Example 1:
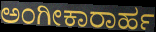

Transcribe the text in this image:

ಅಂಗೀಕಾರಾರ್ಹ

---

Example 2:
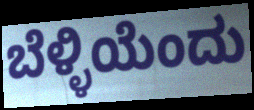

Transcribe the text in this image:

ಬೆಳ್ಳಿಯೆಂದು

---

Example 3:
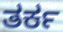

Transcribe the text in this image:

ತರ್ಕ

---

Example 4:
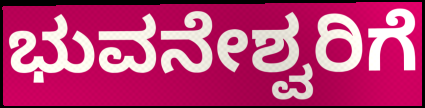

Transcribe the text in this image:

ಭುವನೇಶ್ವರಿಗೆ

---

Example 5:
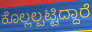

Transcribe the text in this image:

ಕೊಲ್ಲಲ್ಪಟ್ಟಿದ್ದಾರೆ